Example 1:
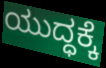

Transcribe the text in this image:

ಯುದ್ಧಕ್ಕೆ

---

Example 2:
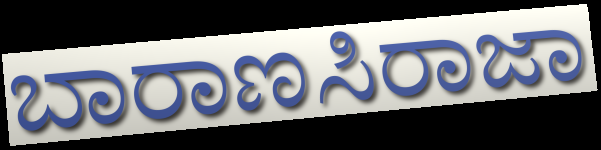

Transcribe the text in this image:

ಬಾರಾಣಸಿರಾಜಾ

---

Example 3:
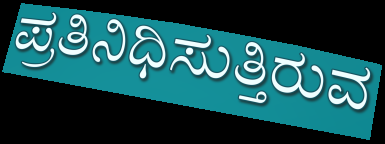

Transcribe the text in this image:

ಪ್ರತಿನಿಧಿಸುತ್ತಿರುವ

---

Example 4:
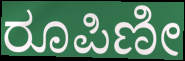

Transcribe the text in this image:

ರೂಪಿಣೀ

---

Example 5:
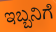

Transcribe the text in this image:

ಇಬ್ಬನಿಗೆ